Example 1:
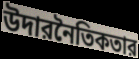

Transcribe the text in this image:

উদারনৈতিকতার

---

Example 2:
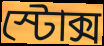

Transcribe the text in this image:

স্টোক্স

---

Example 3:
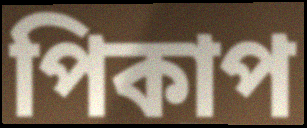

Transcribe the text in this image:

পিকাপ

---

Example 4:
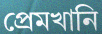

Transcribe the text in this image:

প্রেমখানি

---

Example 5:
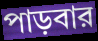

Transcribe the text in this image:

পাড়বার